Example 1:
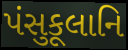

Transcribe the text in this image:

પંસુકૂલાનિ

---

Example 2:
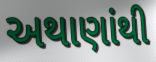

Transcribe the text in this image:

અથાણાંથી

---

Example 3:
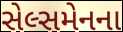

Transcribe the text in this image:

સેલ્સમેનના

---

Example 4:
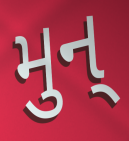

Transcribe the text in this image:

મુન્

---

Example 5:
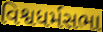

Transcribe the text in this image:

વિશ્વધર્મસભા